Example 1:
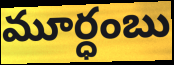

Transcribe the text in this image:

మూర్ధంబు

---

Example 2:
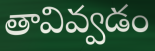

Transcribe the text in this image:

తావివ్వడం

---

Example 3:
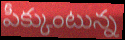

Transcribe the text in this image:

పీక్కుంటున్న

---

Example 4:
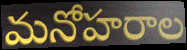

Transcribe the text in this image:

మనోహరాల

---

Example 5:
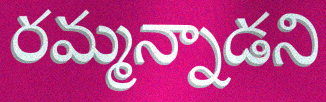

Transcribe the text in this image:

రమ్మన్నాడని